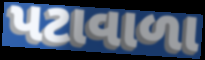
પટાવાળા